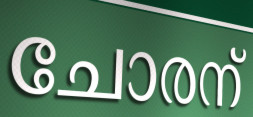
ചോരന്